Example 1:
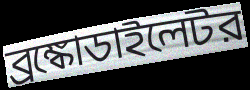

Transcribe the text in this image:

ব্রঙ্কোডাইলেটর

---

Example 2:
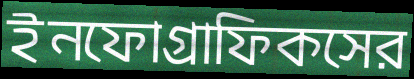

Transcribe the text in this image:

ইনফোগ্রাফিকসের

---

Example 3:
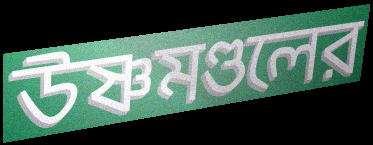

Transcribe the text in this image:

উষ্ণমণ্ডলের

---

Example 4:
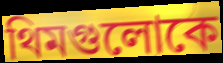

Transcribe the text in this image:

থিমগুলোকে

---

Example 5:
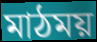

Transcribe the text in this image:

মাঠময়